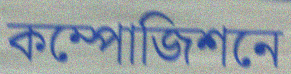
কম্পোজিশনে